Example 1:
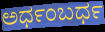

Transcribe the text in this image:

ಅರ್ಧಂಬರ್ಧ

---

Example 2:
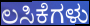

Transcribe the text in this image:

ಲಸಿಕೆಗಳು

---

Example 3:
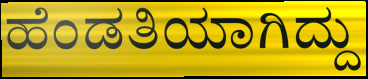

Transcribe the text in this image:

ಹೆಂಡತಿಯಾಗಿದ್ದು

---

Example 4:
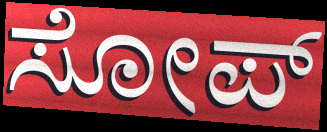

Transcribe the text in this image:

ಸೋಪ್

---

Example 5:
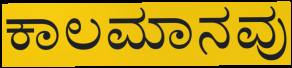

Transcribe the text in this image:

ಕಾಲಮಾನವು